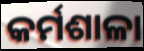
କର୍ମଶାଳା